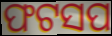
ଫଟସପ